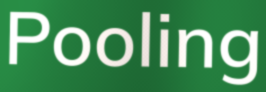
Pooling